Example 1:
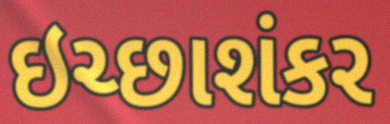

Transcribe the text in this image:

ઇચ્છાશંકર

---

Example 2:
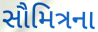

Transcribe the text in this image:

સૌમિત્રના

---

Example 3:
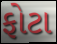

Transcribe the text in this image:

ફોટા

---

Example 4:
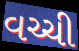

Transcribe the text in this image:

વચ્ચી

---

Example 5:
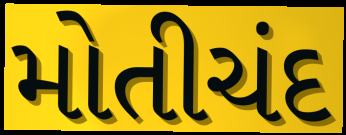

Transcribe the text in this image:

મોતીચંદ